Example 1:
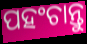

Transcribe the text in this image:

ପହଂଚାନ୍ତୁ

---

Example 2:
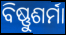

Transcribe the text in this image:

ବିଷ୍ଣୁଶର୍ମା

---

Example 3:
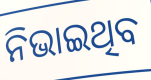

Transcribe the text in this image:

ନିଭାଇଥିବ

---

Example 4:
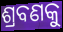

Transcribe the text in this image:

ଶ୍ରବଣକୁ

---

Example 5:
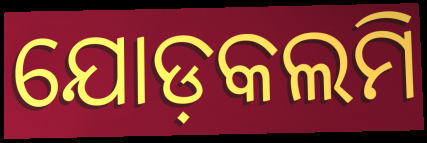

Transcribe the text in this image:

ଯୋଡ଼କଲମି